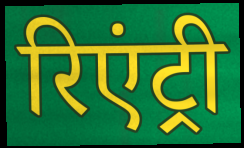
रिएंट्री